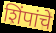
शिंपांचे